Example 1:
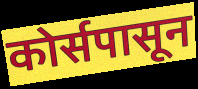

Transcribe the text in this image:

कोर्सपासून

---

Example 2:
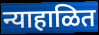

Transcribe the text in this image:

न्याहाळित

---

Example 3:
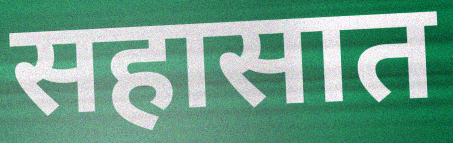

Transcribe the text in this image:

सहासात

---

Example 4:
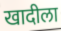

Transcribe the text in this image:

खादीला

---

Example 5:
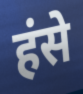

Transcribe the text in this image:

हंसे